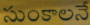
సుంకాలనే